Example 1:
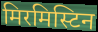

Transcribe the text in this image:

मिरमिस्टिन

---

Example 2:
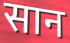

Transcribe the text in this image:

सान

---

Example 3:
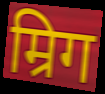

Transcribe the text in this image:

म्रिग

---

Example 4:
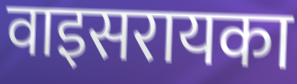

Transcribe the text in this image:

वाइसरायका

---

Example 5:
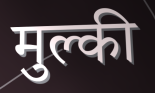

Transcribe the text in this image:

मुल्की